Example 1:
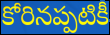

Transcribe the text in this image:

కోరినప్పటికీ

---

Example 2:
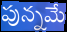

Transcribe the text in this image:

పున్నమే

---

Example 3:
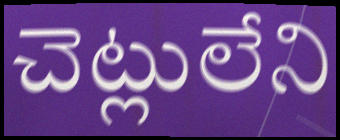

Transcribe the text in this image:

చెట్లులేని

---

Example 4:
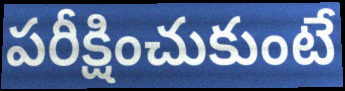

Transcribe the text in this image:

పరీక్షించుకుంటే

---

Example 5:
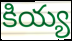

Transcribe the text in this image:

కియ్య